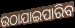
ଉଠାଯାଇପାରିବ